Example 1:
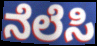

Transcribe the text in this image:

ನೆಲೆಸಿ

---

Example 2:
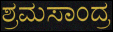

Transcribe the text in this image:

ಶ್ರಮಸಾಂದ್ರ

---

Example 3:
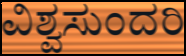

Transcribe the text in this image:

ವಿಶ್ವಸುಂದರಿ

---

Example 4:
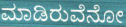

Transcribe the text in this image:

ಮಾಡಿರುವೆನೋ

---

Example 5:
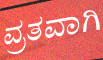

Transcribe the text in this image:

ವ್ರತವಾಗಿ